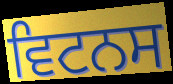
ਵਿਟਨਸ